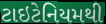
ટાઇટેનિયમથી